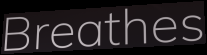
Breathes